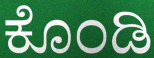
ಕೊಂಡಿ